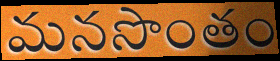
మనసొంతం